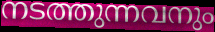
നടത്തുന്നവനും